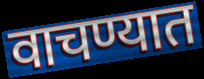
वाचण्यात